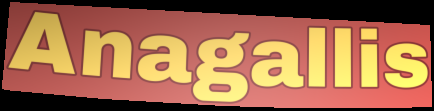
Anagallis